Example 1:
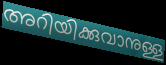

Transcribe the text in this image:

അറിയിക്കുവാനുള്ള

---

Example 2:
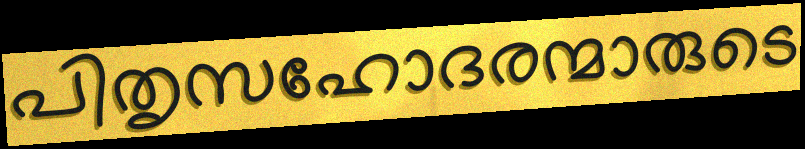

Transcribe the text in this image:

പിതൃസഹോദരന്മാരുടെ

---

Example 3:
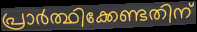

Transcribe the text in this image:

പ്രാർത്ഥിക്കേണ്ടതിന്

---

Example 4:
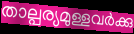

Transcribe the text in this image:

താല്പര്യമുള്ളവർക്കു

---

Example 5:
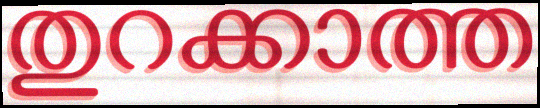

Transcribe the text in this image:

തുറക്കാത്ത